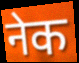
नेक